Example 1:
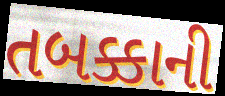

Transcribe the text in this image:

તબક્કાની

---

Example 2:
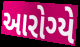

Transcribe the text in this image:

આરોગ્યે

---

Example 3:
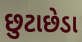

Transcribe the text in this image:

છુટાછેડા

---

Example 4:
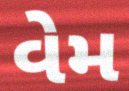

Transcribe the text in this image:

વેમ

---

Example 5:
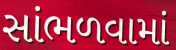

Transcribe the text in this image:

સાંભળવામાં